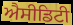
ਐਸੀਡਿਟੀ